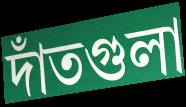
দাঁতগুলা